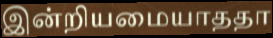
இன்றியமையாததா